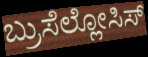
ಬ್ರುಸೆಲ್ಲೋಸಿಸ್